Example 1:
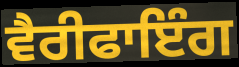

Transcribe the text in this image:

ਵੈਰੀਫਾਇੰਗ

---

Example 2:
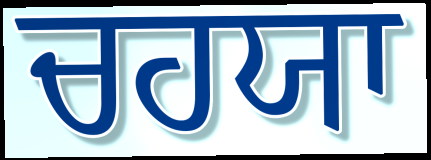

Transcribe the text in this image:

ਚਹਯਾ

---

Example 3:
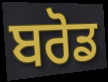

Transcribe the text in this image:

ਬਰੋਡ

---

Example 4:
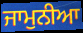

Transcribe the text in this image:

ਜਾਮੁਨੀਆ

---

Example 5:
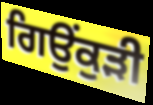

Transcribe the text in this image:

ਗਿਉਂਕੁੜੀ